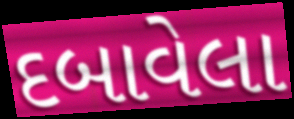
દબાવેલા